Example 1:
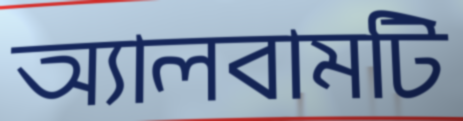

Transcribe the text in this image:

অ্যালবামটি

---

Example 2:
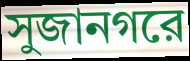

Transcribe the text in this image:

সুজানগরে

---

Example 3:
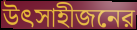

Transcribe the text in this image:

উৎসাহীজনের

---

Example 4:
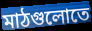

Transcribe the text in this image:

মাঠগুলোতে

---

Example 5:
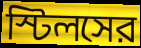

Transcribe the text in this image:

স্টিলসের